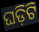
ଘଡ଼ିଟି